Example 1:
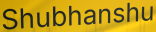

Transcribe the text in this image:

Shubhanshu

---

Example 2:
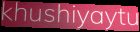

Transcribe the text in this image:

khushiyaytu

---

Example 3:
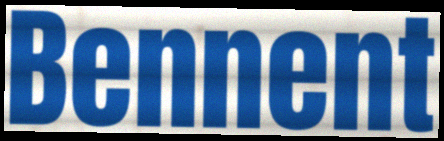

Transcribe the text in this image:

Bennent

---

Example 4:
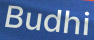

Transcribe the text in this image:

Budhi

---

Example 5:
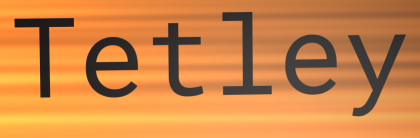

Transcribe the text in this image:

Tetley